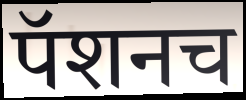
पॅशनच